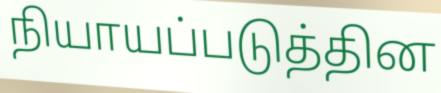
நியாயப்படுத்தின